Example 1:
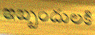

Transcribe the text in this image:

ఇబ్బందులకి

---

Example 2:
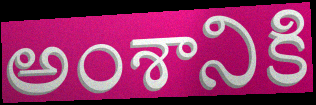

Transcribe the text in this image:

అంశానికి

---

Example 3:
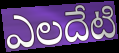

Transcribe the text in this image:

ఎలదేటి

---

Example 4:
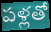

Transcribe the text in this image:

పళ్లతో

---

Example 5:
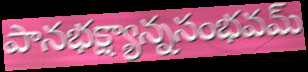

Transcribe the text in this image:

పానభక్ష్యాన్నసంభవమ్